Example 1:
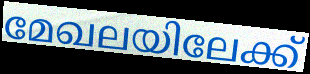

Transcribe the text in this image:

മേഖലയിലേക്ക്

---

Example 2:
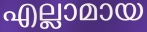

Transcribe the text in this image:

എല്ലാമായ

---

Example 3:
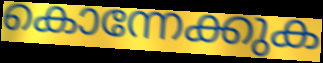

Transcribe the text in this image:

കൊന്നേക്കുക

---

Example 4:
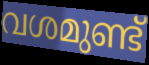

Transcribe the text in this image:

വശമുണ്ട്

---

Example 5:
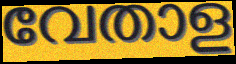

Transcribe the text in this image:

വേതാള